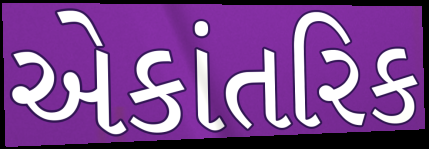
એકાંતરિક